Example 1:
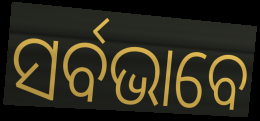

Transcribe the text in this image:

ସର୍ବଭାବେ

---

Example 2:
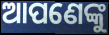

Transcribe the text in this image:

ଆପଣେଙ୍କୁ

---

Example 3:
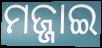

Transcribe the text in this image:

ମଜ୍ଜାଇ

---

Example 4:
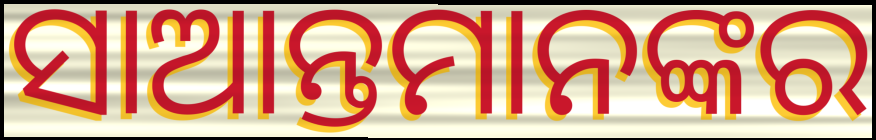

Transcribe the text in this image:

ସାଆନ୍ତମାନଙ୍କର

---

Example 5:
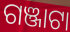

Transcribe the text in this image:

ଗଞ୍ଜାଟା